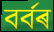
বৰ্বৰ